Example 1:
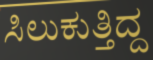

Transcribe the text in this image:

ಸಿಲುಕುತ್ತಿದ್ದ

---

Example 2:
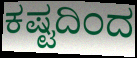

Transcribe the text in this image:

ಕಷ್ಟದಿಂದ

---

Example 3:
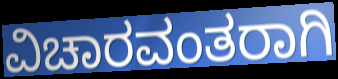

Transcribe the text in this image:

ವಿಚಾರವಂತರಾಗಿ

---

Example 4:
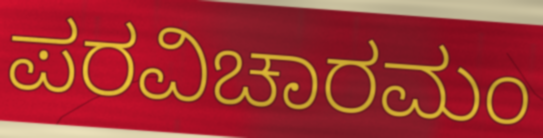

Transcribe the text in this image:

ಪರವಿಚಾರಮಂ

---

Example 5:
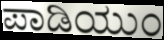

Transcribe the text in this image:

ಪಾಡಿಯುಂ